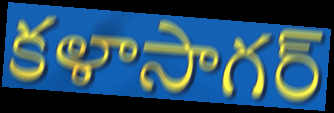
కళాసాగర్